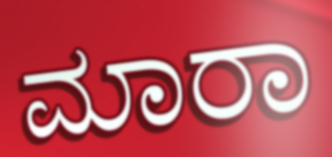
ಮಾರಾ